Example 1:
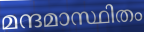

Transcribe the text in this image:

മന്ദമാസ്ഥിതം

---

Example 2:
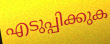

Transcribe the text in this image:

എടുപ്പിക്കുക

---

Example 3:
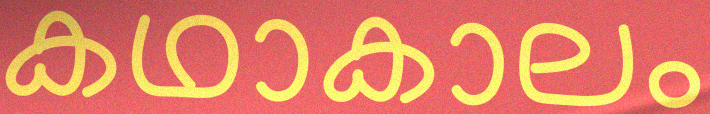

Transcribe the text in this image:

കഥാകാലം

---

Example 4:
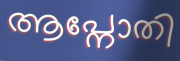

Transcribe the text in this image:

ആപ്നോതി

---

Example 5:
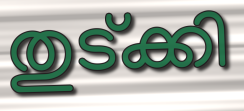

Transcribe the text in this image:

തുട്ക്കി